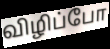
விழிப்போ